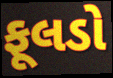
ફૂલડો